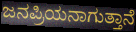
ಜನಪ್ರಿಯನಾಗುತ್ತಾನೆ